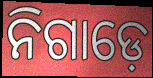
ନିଗାଡ଼େ